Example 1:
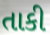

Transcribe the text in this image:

તાકી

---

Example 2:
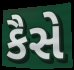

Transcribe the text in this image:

કૈસે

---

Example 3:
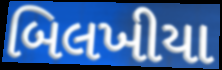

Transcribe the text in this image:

બિલખીયા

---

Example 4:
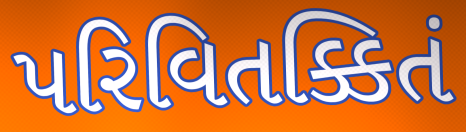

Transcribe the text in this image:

પરિવિતક્કિતં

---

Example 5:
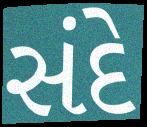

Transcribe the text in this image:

સંદે